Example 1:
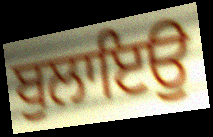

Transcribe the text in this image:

ਬੁਲਾਇਉ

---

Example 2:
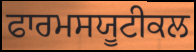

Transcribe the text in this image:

ਫਾਰਮਸਯੂਟੀਕਲ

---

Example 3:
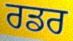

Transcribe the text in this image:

ਰਡਰ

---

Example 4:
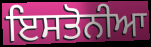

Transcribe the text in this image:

ਇਸਤੋਨੀਆ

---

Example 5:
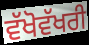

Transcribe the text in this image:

ਵੱਖੋਵੱਖਰੀ